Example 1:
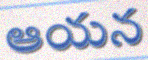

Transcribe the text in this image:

ఆయన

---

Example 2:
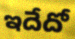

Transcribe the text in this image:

ఇదేదో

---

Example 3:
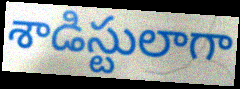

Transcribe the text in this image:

శాడిస్టులాగా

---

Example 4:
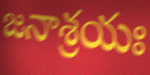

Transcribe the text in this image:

జనాశ్రయః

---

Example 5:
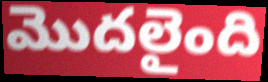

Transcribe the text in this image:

మొదలైంది